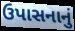
ઉપાસનાનું